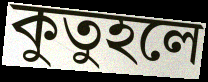
কুতুহলে